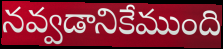
నవ్వడానికేముంది